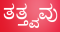
ತತ್ತ್ವವು